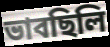
ভাবছিলি